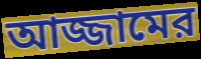
আজ্জামের